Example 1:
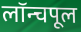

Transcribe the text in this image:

लॉन्चपूल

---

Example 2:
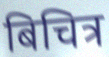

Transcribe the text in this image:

बिचित्र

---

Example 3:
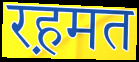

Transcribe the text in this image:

रह़मत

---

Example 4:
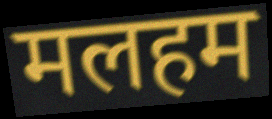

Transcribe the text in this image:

मलहम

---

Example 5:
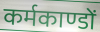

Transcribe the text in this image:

कर्मकाण्डों